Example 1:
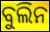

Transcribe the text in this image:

ବୁଲିନ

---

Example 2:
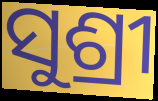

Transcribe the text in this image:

ସୁଶ୍ରୀ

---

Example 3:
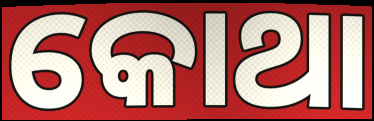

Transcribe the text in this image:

କୋଥା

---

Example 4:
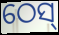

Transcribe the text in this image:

ଠେସ୍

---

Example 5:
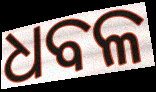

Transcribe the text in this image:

ଧବଳ